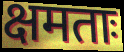
क्षमताः